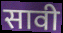
सावी